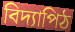
বিদ্যাপিঠ